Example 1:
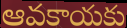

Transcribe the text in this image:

ఆవకాయకు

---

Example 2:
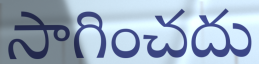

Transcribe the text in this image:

సాగించదు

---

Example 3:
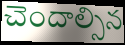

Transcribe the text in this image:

చెందాల్సిన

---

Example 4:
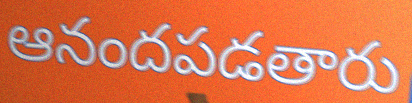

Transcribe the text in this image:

ఆనందపడతారు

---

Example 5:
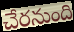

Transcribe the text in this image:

చేరనుంది